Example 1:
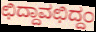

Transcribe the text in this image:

ಛಿದ್ದಾವಛಿದ್ದಂ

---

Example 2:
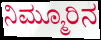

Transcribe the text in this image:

ನಿಮ್ಮೂರಿನ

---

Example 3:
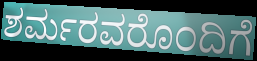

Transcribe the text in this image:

ಶರ್ಮರವರೊಂದಿಗೆ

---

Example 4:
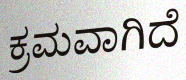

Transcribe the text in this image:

ಕ್ರಮವಾಗಿದೆ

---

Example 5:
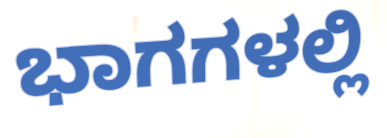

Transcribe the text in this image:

ಭಾಗಗಳಲ್ಲಿ